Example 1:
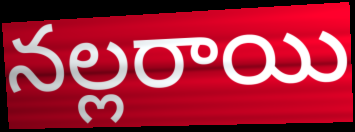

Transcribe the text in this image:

నల్లరాయి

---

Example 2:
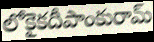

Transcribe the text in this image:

లోకైకదీపాంకురామ్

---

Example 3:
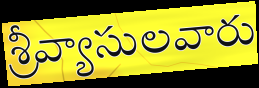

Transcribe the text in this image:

శ్రీవ్యాసులవారు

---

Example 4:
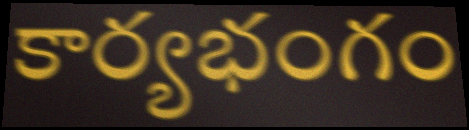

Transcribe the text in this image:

కార్యభంగం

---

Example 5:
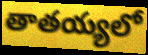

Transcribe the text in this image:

తాతయ్యలో